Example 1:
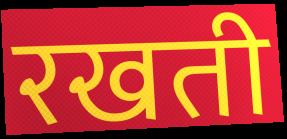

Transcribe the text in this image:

रखती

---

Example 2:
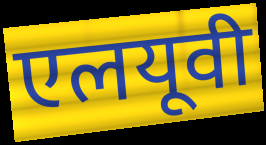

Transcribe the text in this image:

एलयूवी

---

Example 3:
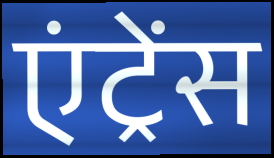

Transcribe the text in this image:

एंट्रेंस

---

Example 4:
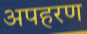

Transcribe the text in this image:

अपहरण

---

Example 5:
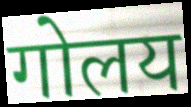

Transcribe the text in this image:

गोलय